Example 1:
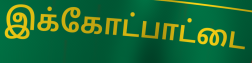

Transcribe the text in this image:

இக்கோட்பாட்டை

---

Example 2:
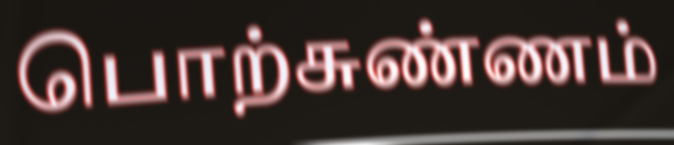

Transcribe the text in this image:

பொற்சுண்ணம்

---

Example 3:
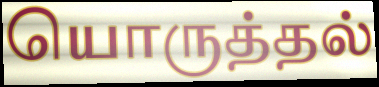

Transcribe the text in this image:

யொருத்தல்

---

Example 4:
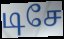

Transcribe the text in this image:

டிசே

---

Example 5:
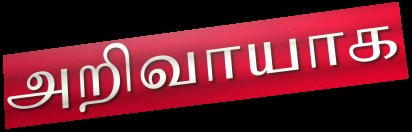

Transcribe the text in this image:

அறிவாயாக